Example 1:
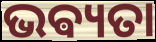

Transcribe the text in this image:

ଭଵ୍ୟତା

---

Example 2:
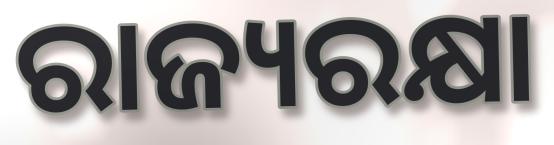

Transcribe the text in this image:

ରାଜ୍ୟରକ୍ଷା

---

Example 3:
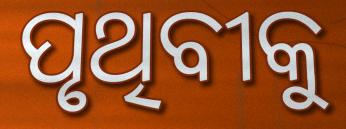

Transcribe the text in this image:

ପୃଥିବୀକୁ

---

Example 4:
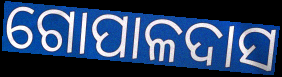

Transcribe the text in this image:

ଗୋପାଳଦାସ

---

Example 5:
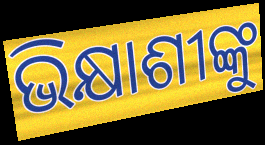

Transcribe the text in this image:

ଭିକ୍ଷାଶୀଙ୍କୁ